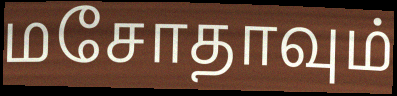
மசோதாவும்